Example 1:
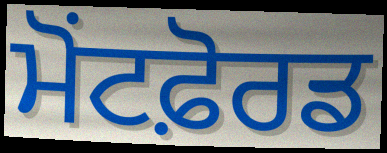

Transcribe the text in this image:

ਮੋਂਟਫ਼ੋਰਡ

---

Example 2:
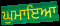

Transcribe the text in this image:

ਘੁਮਾਇਆ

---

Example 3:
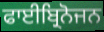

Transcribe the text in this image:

ਫਾਈਬ੍ਰਿਨੋਜਨ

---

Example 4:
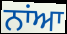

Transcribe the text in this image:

ਨਾਂਆ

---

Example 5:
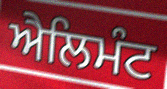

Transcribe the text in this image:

ਐਲਿਮੰਟ